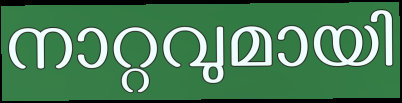
നാറ്റവുമായി